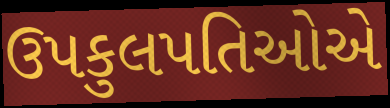
ઉપકુલપતિઓએ